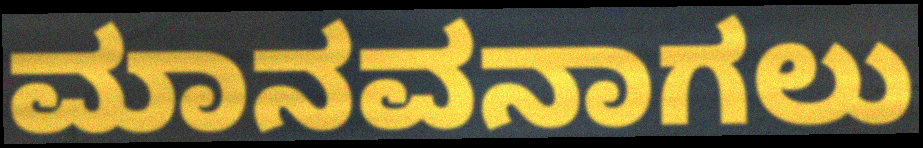
ಮಾನವನಾಗಲು